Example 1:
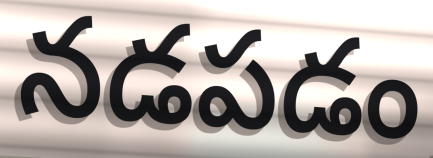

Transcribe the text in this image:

నడపడం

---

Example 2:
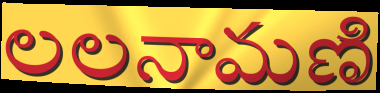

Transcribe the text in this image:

లలనామణి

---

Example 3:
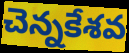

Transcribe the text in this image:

చెన్నకేశవ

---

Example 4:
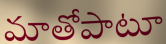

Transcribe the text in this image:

మాతోపాటూ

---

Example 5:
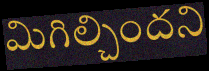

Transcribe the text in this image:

మిగిల్చిందని